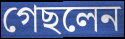
গেছলেন